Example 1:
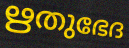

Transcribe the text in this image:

ഋതുഭേദ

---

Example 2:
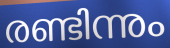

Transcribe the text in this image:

രണ്ടിന്നും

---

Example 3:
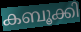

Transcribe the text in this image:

കബൂക്കി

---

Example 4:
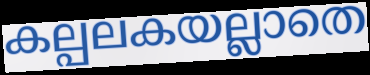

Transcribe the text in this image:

കല്പലകയല്ലാതെ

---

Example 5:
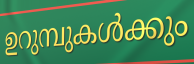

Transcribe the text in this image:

ഉറുമ്പുകൾക്കും